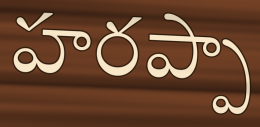
హరప్పా